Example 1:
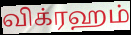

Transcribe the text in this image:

விக்ரஹம்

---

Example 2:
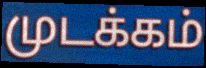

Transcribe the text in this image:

முடக்கம்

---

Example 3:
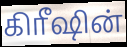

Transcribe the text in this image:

கிரீஷின்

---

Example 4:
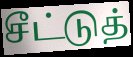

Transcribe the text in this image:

சீட்டுத்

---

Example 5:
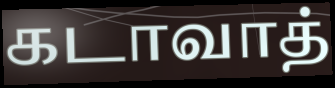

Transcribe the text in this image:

கடாவாத்